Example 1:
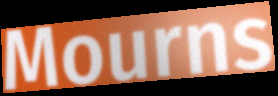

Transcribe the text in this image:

Mourns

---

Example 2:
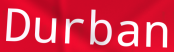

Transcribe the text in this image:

Durban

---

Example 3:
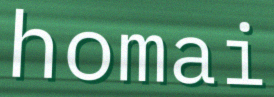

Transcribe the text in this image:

homai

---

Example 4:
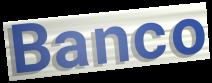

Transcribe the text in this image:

Banco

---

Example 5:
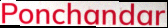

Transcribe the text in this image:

Ponchandar